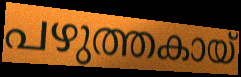
പഴുത്തകായ്